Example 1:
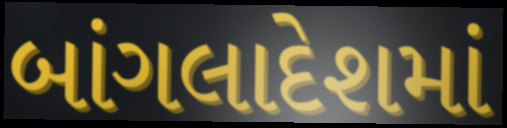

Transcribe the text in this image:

બાંગલાદેશમાં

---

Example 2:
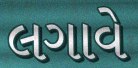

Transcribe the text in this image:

લગાવે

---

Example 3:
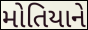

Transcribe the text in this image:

મોતિયાને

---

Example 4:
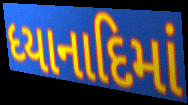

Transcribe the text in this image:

ધ્યાનાદિમાં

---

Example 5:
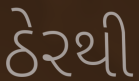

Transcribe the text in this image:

ઠેરથી